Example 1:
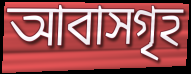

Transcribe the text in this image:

আবাসগৃহ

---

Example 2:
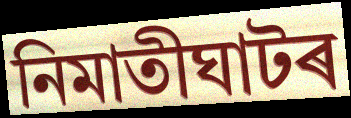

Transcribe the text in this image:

নিমাতীঘাটৰ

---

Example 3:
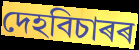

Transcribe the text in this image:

দেহবিচাৰৰ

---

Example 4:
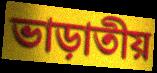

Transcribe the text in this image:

ভাড়াতীয়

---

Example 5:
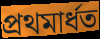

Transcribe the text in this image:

প্ৰথমাৰ্ধত